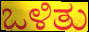
ಒಳಿತು